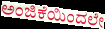
ಅಂಜಿಕೆಯಿಂದಲೇ